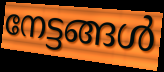
നേട്ടങ്ങൾ